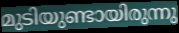
മുടിയുണ്ടായിരുന്നു